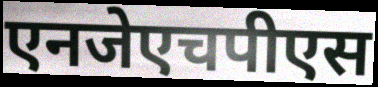
एनजेएचपीएस